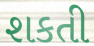
શકતી